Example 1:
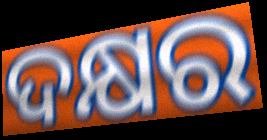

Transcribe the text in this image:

ଦକ୍ଷର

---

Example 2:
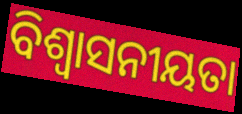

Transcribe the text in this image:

ବିଶ୍ୱାସନୀୟତା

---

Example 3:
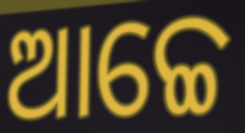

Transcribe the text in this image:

ଆଚ୍ଚେ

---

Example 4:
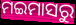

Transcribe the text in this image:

ମଇମାସରୁ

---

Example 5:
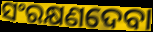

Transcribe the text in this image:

ସଂରକ୍ଷଣଦେବା